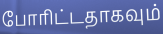
போரிட்டதாகவும்